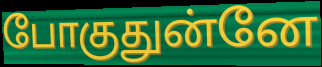
போகுதுன்னே